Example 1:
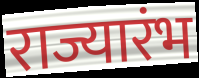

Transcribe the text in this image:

राज्यारंभ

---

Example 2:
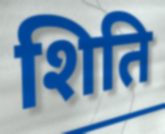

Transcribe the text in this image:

शिति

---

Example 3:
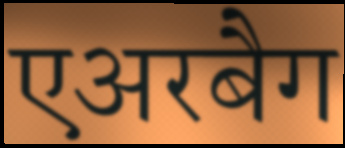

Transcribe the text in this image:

एअरबैग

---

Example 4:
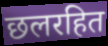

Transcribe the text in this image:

छलरहित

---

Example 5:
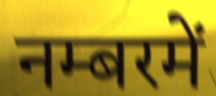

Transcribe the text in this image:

नम्बरमें